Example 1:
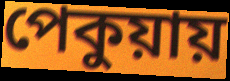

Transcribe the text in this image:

পেকুয়ায়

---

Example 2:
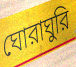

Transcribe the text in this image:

ঘোরাঘুরি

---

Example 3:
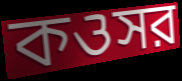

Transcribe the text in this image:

কওসর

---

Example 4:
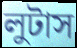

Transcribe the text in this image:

লুটাস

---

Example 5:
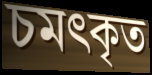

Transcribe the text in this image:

চমৎকৃত